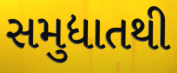
સમુદ્યાતથી